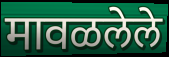
मावळलेले